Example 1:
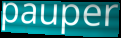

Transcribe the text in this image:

pauper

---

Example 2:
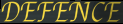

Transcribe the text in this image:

DEFENCE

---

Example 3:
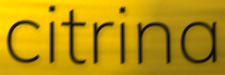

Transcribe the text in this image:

citrina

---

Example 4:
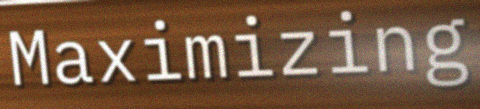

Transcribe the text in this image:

Maximizing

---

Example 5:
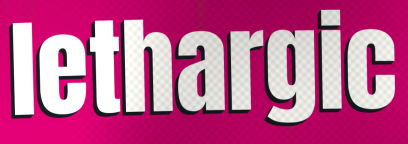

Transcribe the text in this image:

lethargic